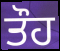
ਤੌਹ